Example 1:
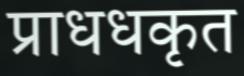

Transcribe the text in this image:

प्राधधकृत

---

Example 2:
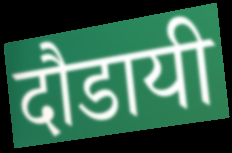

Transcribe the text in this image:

दौडायी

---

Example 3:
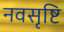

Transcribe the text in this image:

नवसृष्टि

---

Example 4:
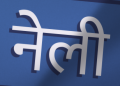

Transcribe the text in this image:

नेली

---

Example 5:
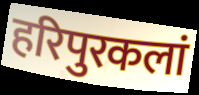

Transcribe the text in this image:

हरिपुरकलां